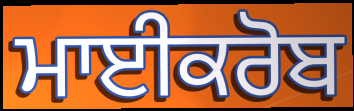
ਮਾਈਕਰੋਬ